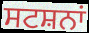
ਸਟਸ਼ਨਾਂ